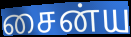
சைன்ய